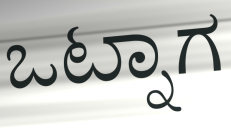
ಒಟ್ನಾಗ